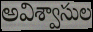
అవిశ్వాసుల